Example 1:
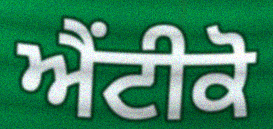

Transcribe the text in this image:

ਐਂਟੀਕੋ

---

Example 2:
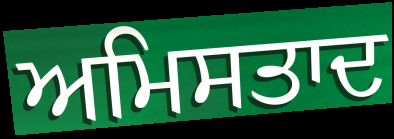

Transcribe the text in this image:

ਅਮਿਸਤਾਦ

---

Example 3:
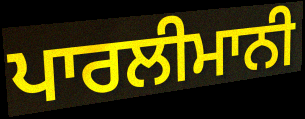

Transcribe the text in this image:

ਪਾਰਲੀਮਾਨੀ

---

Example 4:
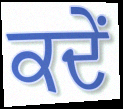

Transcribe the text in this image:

ਕਦੇਂ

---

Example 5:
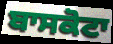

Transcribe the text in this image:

ਬਾਸਕੋਟਾ